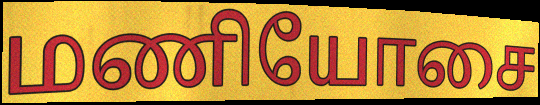
மணியோசை